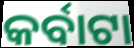
କର୍ବାଟା